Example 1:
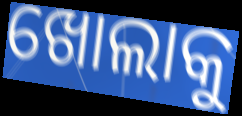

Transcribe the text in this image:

ଖୋଲାକୁ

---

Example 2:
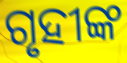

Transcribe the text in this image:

ଗୃହୀଙ୍କ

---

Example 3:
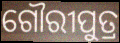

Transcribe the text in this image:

ଗୌରୀପୁତ୍ର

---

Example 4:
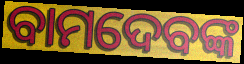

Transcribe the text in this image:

ବାମଦେବଙ୍କ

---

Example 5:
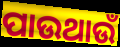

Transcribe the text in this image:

ପାଉଥାଉଁ